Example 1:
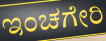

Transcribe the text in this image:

ಇಂಚಗೇರಿ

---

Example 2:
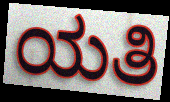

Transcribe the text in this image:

ಯತಿ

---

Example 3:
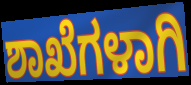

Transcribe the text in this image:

ಶಾಖೆಗಳಾಗಿ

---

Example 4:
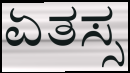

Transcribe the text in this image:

ಏತಸ್ಸ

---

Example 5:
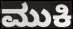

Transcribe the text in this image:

ಮುಕಿ